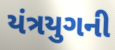
યંત્રયુગની